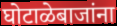
घोटाळेबाजांना